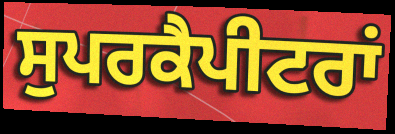
ਸੁਪਰਕੈਪੀਟਰਾਂ